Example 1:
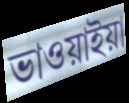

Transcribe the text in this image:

ভাওয়াইয়া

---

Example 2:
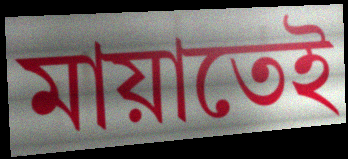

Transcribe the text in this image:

মায়াতেই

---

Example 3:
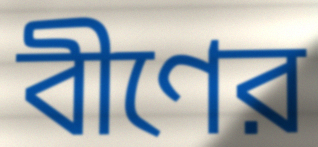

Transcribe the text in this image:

বীণের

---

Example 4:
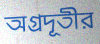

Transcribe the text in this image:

অগ্রদূতীর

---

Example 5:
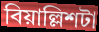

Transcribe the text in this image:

বিয়াল্লিশটা